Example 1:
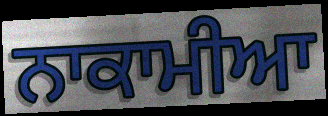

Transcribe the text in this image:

ਨਾਕਾਮੀਆ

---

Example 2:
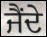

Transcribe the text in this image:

ਜੈਂਦੇ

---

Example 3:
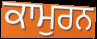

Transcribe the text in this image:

ਕਾਮੁਰਨ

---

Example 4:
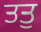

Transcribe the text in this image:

ਤਤੁ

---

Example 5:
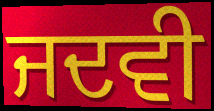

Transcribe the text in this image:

ਜਦਵੀ